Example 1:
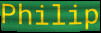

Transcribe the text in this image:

Philip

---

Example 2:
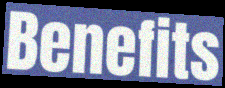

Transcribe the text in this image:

Benefits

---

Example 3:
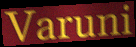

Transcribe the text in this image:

Varuni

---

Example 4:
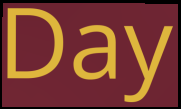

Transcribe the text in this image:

Day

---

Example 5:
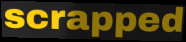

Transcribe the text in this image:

scrapped